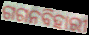
ଗଗନବିହାରୀ